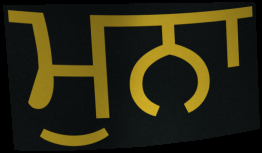
ਮੁਨਾ